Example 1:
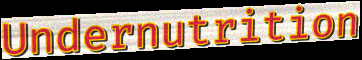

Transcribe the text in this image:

Undernutrition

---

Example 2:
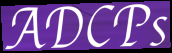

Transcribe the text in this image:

ADCPs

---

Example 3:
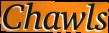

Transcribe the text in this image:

Chawls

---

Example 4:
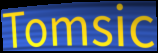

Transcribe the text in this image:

Tomsic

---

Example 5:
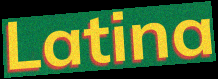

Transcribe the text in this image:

Latina